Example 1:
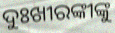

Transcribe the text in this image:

ଦୁଃଖୀରଙ୍କୀଙ୍କୁ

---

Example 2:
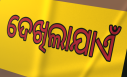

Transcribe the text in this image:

ଦେଖିଲାଯାଏଁ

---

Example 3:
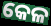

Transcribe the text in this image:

କେଳ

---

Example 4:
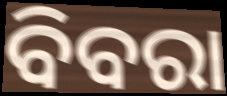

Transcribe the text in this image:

ବିବରା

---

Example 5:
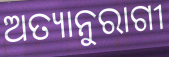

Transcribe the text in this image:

ଅତ୍ୟାନୁରାଗୀ